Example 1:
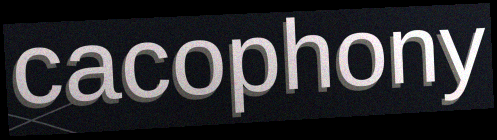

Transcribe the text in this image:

cacophony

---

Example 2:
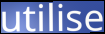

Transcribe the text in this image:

utilise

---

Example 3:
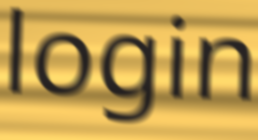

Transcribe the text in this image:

login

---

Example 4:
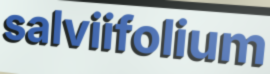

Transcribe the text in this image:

salviifolium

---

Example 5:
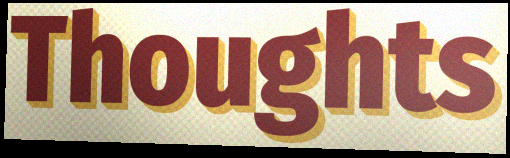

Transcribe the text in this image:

Thoughts